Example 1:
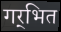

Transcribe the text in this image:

गर्भित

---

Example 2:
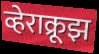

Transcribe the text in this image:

व्हेराक्रूझ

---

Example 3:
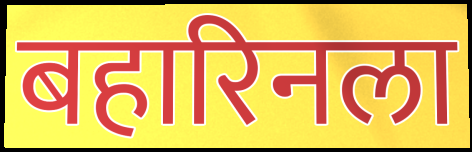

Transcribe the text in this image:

बहारिनला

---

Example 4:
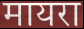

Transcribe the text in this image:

मायरा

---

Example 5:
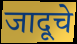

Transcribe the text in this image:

जादूचे